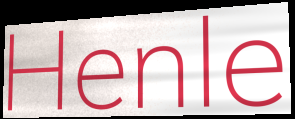
Henle